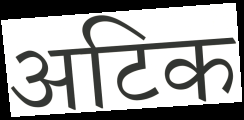
अटिक